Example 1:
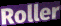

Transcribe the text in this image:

Roller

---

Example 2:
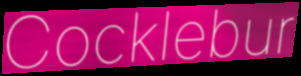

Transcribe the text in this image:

Cocklebur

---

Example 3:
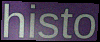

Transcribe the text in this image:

histo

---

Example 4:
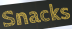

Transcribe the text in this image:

Snacks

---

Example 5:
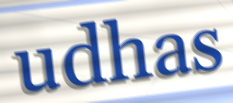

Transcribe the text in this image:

udhas